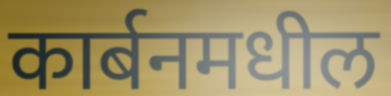
कार्बनमधील